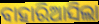
ବାହାରିଆସିଲା